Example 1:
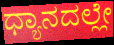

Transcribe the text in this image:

ಧ್ಯಾನದಲ್ಲೇ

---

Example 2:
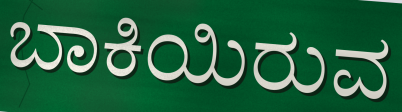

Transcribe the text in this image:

ಬಾಕಿಯಿರುವ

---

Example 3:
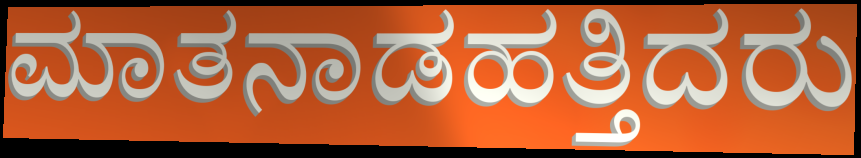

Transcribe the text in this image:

ಮಾತನಾಡಹತ್ತಿದರು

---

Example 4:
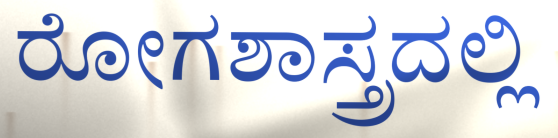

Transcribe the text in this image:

ರೋಗಶಾಸ್ತ್ರದಲ್ಲಿ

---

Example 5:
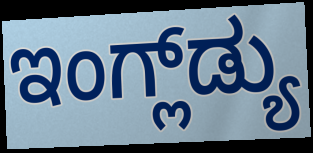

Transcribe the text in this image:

ಇಂಗ್ಲ್‌ಡ್ಯು